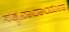
ಸತ್ಯನಾರಾಯಣ